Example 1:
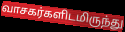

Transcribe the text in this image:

வாசகர்களிடமிருந்து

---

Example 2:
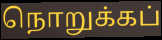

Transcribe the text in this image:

நொறுக்கப்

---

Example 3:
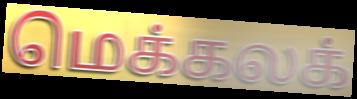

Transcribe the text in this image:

மெக்கலக்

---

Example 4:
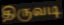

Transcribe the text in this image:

திருவடி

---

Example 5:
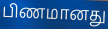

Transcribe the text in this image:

பிணமானது